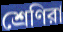
শ্রেণিরা